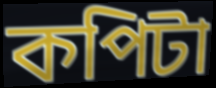
কপিটা